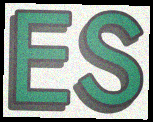
ES